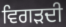
ਵਿਗੜਦੀ